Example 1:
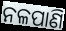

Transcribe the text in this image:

ନଳପାଣି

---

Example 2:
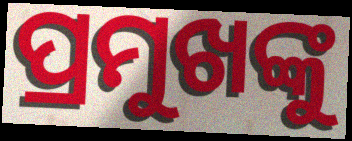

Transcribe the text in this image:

ପ୍ରମୁଖଙ୍କୁ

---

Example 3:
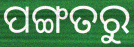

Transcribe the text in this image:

ପଙ୍ଗତରୁ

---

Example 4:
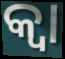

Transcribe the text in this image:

କ୍ଵା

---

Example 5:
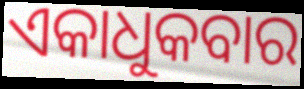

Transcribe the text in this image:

ଏକାଧୁକବାର